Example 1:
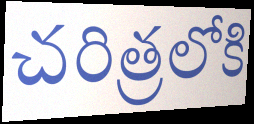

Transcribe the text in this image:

చరిత్రలోకి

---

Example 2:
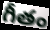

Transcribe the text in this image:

గీతం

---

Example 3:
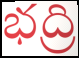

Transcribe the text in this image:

భద్రి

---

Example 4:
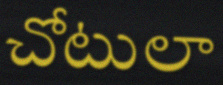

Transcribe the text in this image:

చోటులా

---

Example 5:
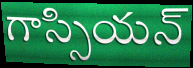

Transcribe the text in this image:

గాస్సియన్